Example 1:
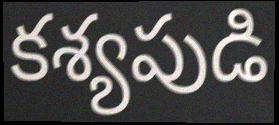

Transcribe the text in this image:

కశ్యపుడి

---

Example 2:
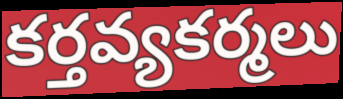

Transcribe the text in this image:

కర్తవ్యకర్మలు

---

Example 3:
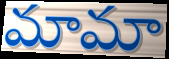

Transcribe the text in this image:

మామా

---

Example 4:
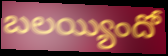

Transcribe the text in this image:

బలయ్యిందో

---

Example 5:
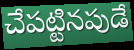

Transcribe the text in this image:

చేపట్టినపుడే